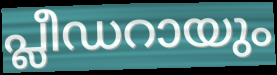
പ്ലീഡറായും